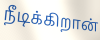
நீடிக்கிறான்